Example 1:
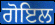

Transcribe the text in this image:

ਗੋਇਲ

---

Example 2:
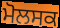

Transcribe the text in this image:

ਮੋਲਸਕ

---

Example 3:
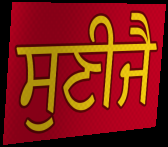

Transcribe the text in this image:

ਸੁਣੀਜੈ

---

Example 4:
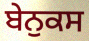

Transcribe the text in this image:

ਬੇਨੁਕਸ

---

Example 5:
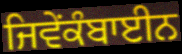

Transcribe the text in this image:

ਜਿਵੇਂਕੰਬਾਈਨ